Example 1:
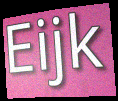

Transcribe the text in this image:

Eijk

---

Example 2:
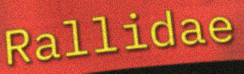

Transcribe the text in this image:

Rallidae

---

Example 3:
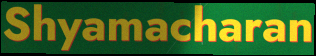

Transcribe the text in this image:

Shyamacharan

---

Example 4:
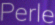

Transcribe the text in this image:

Perle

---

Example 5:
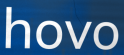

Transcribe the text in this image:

hovo